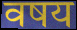
वषय